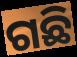
ଗଛି